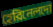
হেরিনেলদো